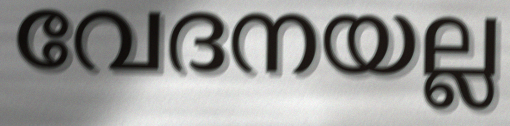
വേദനയല്ല